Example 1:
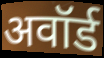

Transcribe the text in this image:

अवॉर्ड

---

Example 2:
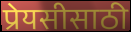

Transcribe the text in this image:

प्रेयसीसाठी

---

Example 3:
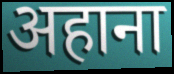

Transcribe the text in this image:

अहाना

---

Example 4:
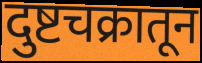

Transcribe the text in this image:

दुष्टचक्रातून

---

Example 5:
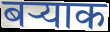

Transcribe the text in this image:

बऱ्याक